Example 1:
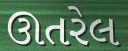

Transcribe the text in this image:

ઊતરેલ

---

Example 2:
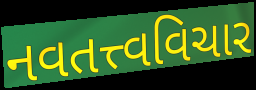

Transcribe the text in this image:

નવતત્ત્વવિચાર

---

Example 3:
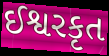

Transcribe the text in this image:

ઈશ્વરકૃત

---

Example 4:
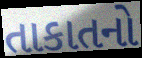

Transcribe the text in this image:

તાકાતનો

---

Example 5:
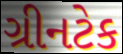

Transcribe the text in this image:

ગ્રીનટેક